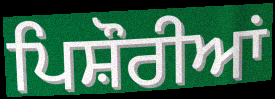
ਪਿਸ਼ੌਰੀਆਂ